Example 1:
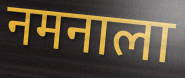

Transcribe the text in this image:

नमनाला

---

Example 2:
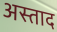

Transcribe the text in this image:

अस्ताद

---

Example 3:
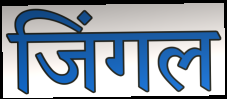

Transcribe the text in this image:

जिंगल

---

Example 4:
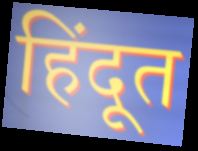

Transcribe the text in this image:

हिंदूत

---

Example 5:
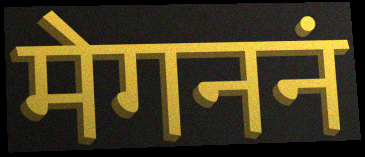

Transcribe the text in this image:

मेगननं